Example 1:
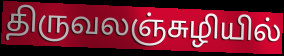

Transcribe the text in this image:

திருவலஞ்சுழியில்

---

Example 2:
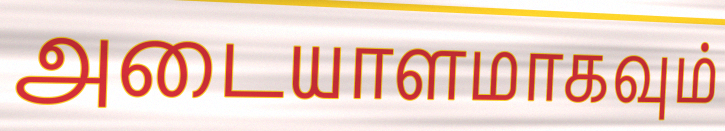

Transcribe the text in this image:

அடையாளமாகவும்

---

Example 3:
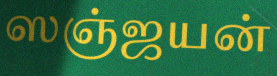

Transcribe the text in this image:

ஸஞ்ஜயன்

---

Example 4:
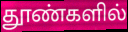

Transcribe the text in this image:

தூண்களில்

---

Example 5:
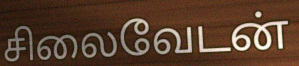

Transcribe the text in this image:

சிலைவேடன்